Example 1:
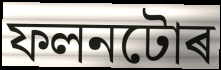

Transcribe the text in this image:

ফলনটোৰ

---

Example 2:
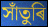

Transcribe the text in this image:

সাঁতুৰি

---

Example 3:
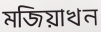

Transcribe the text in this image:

মজিয়াখন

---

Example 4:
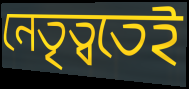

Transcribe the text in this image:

নেতৃত্বতেই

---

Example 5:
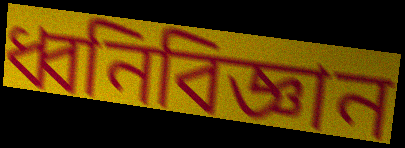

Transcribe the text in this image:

ধ্বনিবিজ্ঞান